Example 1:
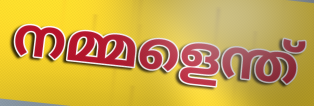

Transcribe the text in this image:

നമ്മളെന്ത്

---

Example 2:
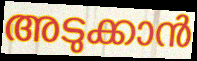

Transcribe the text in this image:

അടുക്കാൻ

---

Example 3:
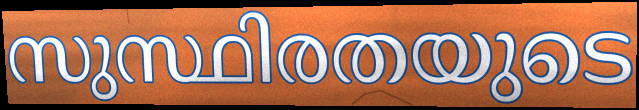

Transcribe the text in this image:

സുസ്ഥിരതയുടെ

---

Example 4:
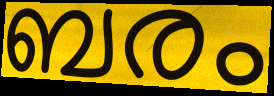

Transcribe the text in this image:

ബരം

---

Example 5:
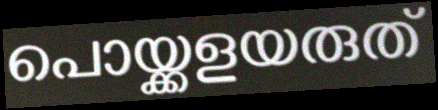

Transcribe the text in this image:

പൊയ്ക്കളയരുത്